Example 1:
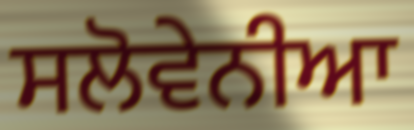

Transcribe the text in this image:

ਸਲੋਵੇਨੀਆ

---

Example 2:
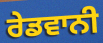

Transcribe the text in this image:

ਰੇਡਵਾਨੀ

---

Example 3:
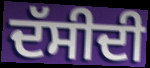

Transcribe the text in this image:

ਦੱਸੀਦੀ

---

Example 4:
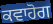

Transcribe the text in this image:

ਕਵਾਹੋਗ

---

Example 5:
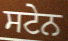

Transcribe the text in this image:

ਸਟੇਨ